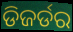
ଡିଜର୍ଡର